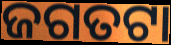
ଜଗତଟା